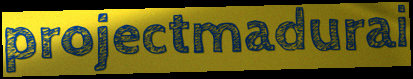
projectmadurai